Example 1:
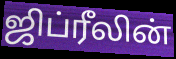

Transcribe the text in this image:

ஜிப்ரீலின்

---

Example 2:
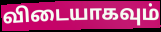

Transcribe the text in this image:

விடையாகவும்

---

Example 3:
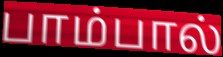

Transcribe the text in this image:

பாம்பால்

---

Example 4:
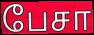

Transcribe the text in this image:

பேசா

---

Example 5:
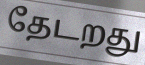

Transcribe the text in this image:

தேடறது